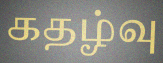
கதழ்வு